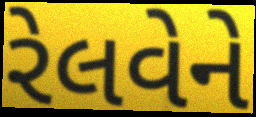
રેલવેને